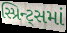
સ્પ્રિન્ટ્સમાં